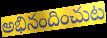
అభినందించుట